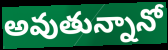
అవుతున్నానో